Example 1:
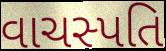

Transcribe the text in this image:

વાચસ્પતિ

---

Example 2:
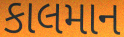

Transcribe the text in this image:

કાલમાન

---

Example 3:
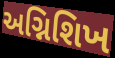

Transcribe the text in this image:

અગ્નિશિખ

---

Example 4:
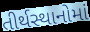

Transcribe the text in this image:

તીર્થસ્થાનોમાં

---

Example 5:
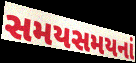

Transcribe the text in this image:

સમયસમયનાં